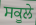
ਸਕੂਲੇ